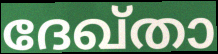
ദേഖ്താ